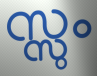
സ്സും